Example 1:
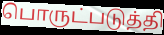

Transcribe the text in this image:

பொருட்படுத்தி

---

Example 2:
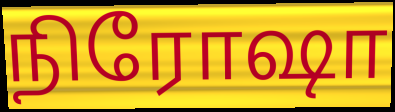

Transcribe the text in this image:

நிரோஷா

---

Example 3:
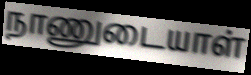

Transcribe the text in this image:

நாணுடையாள்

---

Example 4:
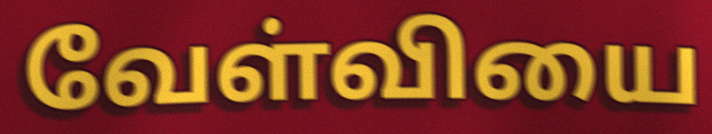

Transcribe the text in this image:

வேள்வியை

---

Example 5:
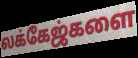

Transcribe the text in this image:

லக்கேஜ்களை